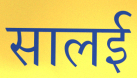
सालई